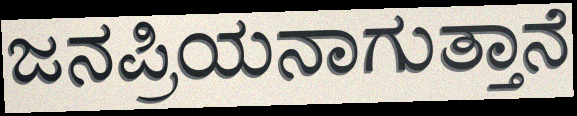
ಜನಪ್ರಿಯನಾಗುತ್ತಾನೆ